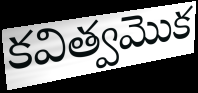
కవిత్వమొక